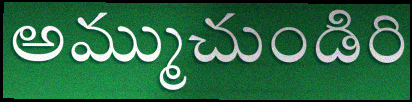
అమ్ముచుండిరి